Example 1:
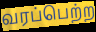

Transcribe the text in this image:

வரப்பெற்ற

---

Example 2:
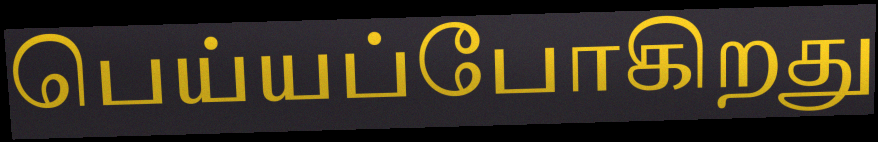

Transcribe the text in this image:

பெய்யப்போகிறது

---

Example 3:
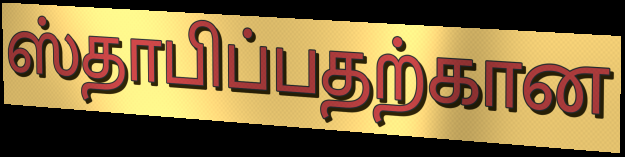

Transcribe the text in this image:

ஸ்தாபிப்பதற்கான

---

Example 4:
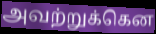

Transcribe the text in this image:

அவற்றுக்கென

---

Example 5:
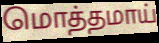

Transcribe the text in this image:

மொத்தமாய்